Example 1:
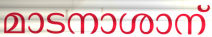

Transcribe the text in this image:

മാടനാശാന്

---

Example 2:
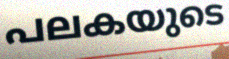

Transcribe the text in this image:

പലകയുടെ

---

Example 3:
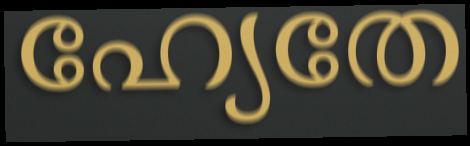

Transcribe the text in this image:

ഹ്യേതേ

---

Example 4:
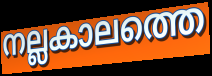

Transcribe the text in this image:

നല്ലകാലത്തെ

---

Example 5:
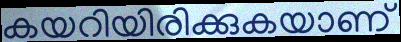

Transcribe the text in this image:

കയറിയിരിക്കുകയാണ്